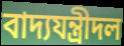
বাদ্যযন্ত্রীদল